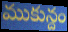
ముకున్దం